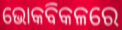
ଭୋକବିକଳରେ